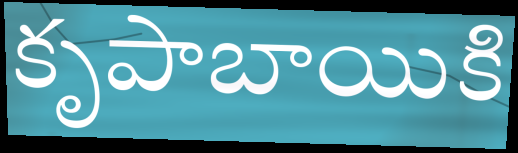
కృపాబాయికి